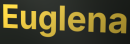
Euglena